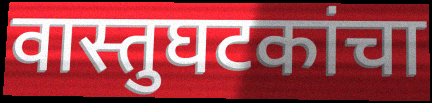
वास्तुघटकांचा